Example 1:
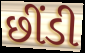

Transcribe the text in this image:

છીંડી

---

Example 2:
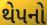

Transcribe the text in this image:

થેપનો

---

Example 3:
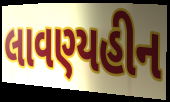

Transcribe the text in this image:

લાવણ્યહીન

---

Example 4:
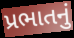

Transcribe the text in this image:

પ્રભાતનું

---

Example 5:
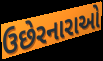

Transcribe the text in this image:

ઉછેરનારાઓ